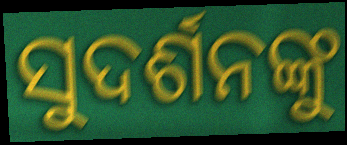
ସୁଦର୍ଶନଙ୍କୁ